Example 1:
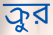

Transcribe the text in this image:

ক্রুর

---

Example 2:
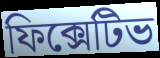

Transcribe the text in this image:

ফিক্সেটিভ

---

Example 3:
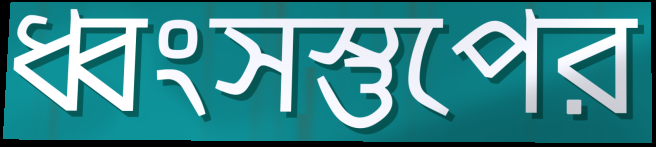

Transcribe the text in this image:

ধ্বংসস্তুপের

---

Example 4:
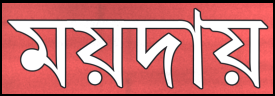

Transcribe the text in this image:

ময়দায়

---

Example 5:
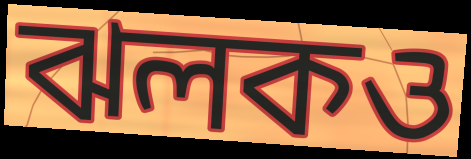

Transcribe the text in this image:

ঝলকও